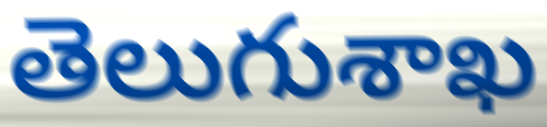
తెలుగుశాఖ